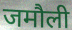
जमौली